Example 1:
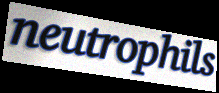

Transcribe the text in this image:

neutrophils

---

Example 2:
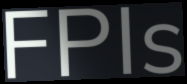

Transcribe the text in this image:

FPIs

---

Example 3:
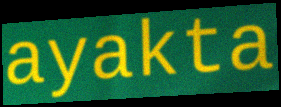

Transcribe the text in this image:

ayakta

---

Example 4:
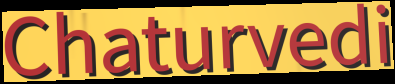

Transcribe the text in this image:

Chaturvedi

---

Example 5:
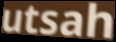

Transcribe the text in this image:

utsah